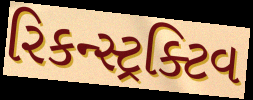
રિકન્સ્ટ્રક્ટિવ